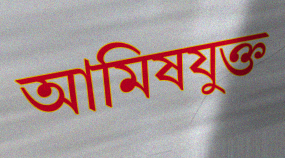
আমিষযুক্ত